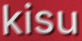
kisu